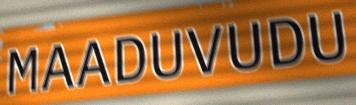
MAADUVUDU